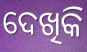
ଦେଖିକି